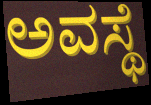
ಅವಸ್ಥೆ